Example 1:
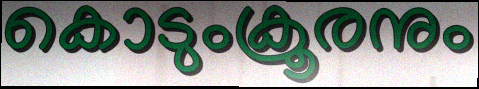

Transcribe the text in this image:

കൊടുംക്രൂരനും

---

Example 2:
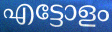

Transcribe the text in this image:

എട്ടോളം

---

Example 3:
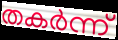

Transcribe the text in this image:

തകർന്ന്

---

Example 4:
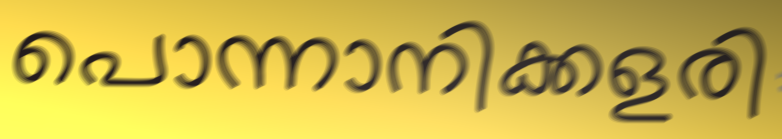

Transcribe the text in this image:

പൊന്നാനിക്കളരി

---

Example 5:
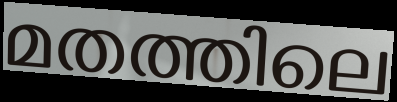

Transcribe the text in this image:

മതത്തിലെ